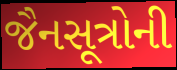
જૈનસૂત્રોની